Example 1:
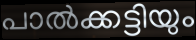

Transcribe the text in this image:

പാൽക്കട്ടിയും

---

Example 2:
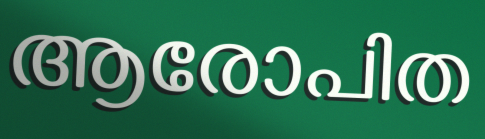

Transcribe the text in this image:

ആരോപിത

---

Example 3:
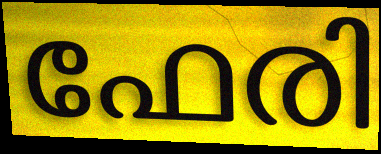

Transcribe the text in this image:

ഫേരി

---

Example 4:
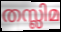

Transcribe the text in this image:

തസ്ലിമ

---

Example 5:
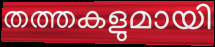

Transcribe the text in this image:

തത്തകളുമായി